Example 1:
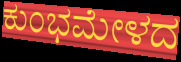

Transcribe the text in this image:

ಕುಂಭಮೇಳದ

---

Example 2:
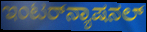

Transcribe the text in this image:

ಇಂಟರ್‌ನ್ಯಾಷನಲ್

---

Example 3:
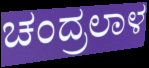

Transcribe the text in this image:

ಚಂದ್ರಲಾಳ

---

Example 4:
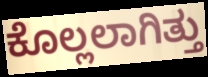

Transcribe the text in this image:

ಕೊಲ್ಲಲಾಗಿತ್ತು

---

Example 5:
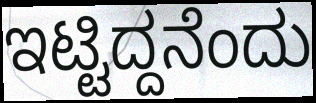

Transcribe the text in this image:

ಇಟ್ಟಿದ್ದನೆಂದು